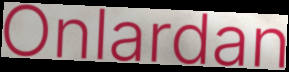
Onlardan